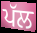
ਪੱਲ